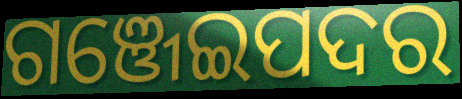
ଗଞ୍ଜେଇପଦର